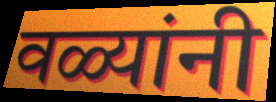
वळ्यांनी